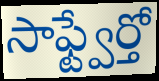
సాఫ్ట్వేర్తో